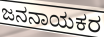
ಜನನಾಯಕರ